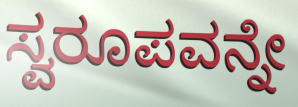
ಸ್ವರೂಪವನ್ನೇ